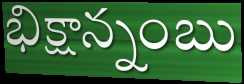
భిక్షాన్నంబు